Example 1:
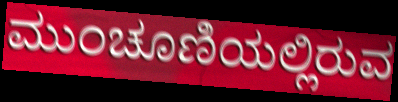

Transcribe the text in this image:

ಮುಂಚೂಣಿಯಲ್ಲಿರುವ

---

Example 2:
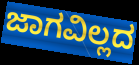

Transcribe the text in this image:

ಜಾಗವಿಲ್ಲದ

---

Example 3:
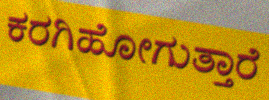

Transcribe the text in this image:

ಕರಗಿಹೋಗುತ್ತಾರೆ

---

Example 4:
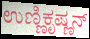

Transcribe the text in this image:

ಉಣ್ಣಿಕೃಷ್ಣನ್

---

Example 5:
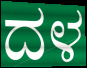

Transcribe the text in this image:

ದಳ